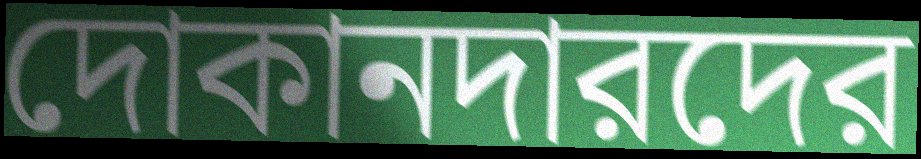
দোকানদারদের